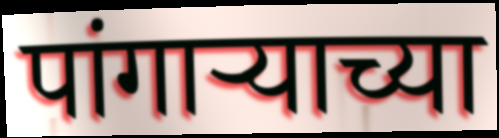
पांगार्‍याच्या